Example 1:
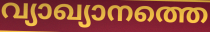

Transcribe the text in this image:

വ്യാഖ്യാനത്തെ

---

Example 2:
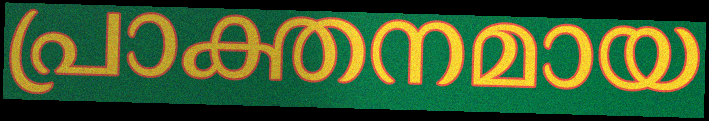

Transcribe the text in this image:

പ്രാക്തനമായ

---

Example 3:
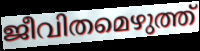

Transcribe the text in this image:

ജീവിതമെഴുത്ത്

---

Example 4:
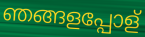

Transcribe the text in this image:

ഞങ്ങളപ്പോള്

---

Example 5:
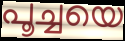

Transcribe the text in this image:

പൂച്ചയെ